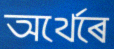
অৰ্থেৰে